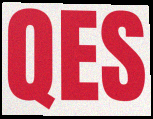
QES